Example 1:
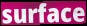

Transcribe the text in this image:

surface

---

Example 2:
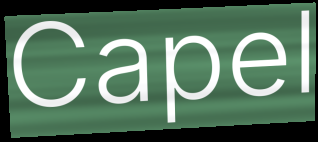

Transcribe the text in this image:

Capel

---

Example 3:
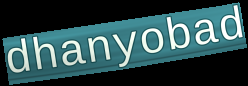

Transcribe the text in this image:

dhanyobad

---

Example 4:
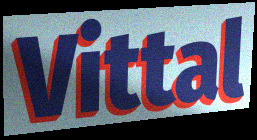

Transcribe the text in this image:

Vittal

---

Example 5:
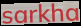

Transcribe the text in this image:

sarkha